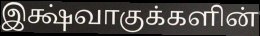
இக்ஷ்வாகுக்களின்